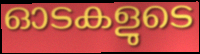
ഓടകളുടെ